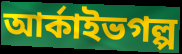
আর্কাইভগল্প